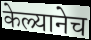
केल्यानेच